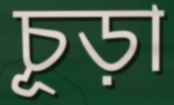
চূড়া